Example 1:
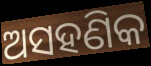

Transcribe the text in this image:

ଅସହଣିକ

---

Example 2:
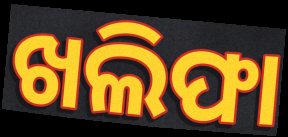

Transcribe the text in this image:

ଖଲିଫା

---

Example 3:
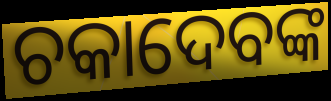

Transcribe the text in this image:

ଚକାଦେବଙ୍କ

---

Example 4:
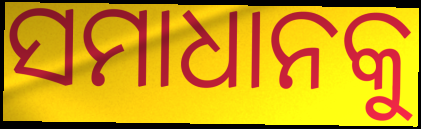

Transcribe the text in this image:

ସମାଧାନକୁ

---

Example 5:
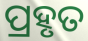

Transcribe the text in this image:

ପ୍ରହୃତ